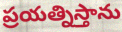
ప్రయత్నిస్తాను